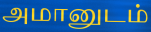
அமானுடம்